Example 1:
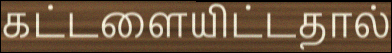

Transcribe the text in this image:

கட்டளையிட்டதால்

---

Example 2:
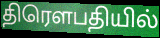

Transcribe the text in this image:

திரௌபதியில்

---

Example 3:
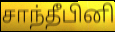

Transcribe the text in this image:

சாந்தீபினி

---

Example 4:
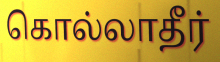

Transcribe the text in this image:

கொல்லாதீர்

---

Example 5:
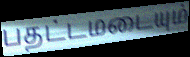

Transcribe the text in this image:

பதட்டமடையும்